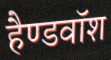
हैण्डवॉश